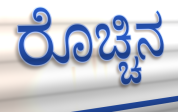
ರೊಚ್ಚಿನ